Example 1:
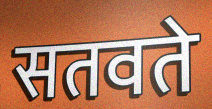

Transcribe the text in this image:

सतवते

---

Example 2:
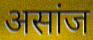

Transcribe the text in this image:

असांज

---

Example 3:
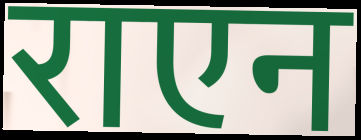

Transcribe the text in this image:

राएन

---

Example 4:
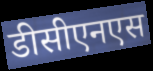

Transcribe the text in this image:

डीसीएनएस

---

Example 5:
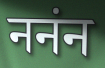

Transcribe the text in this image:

ननंन